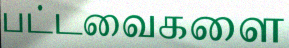
பட்டவைகளை